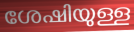
ശേഷിയുള്ള